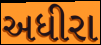
અધીરા